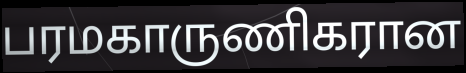
பரமகாருணிகரான